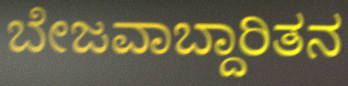
ಬೇಜವಾಬ್ದಾರಿತನ